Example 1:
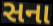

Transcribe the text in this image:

સના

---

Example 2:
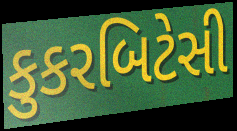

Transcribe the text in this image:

કુકરબિટેસી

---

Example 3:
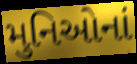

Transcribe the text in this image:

મુનિઓનાં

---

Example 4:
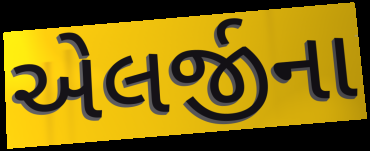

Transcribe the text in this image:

એલર્જીના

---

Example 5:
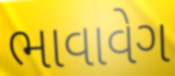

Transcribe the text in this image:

ભાવાવેગ